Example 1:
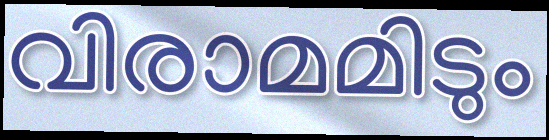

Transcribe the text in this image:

വിരാമമിടും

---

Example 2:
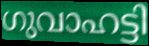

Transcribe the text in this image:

ഗുവാഹട്ടി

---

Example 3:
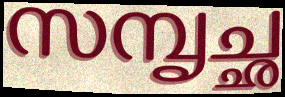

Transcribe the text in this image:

സമ്പൃച്ഛ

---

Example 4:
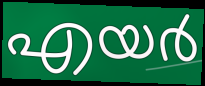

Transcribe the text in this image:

എയർ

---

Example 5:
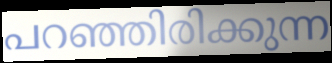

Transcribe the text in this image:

പറഞ്ഞിരിക്കുന്ന